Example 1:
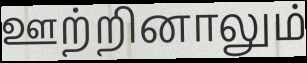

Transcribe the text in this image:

ஊற்றினாலும்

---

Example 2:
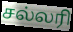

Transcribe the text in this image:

சல்லரி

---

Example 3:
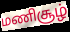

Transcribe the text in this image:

மணிசூழ்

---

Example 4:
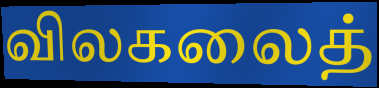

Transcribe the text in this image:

விலகலைத்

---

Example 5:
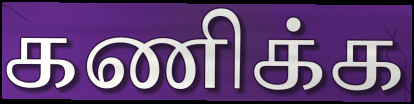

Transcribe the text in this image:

கணிக்க